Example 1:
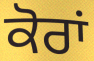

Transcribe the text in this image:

ਕੋਰਾਂ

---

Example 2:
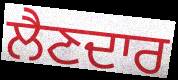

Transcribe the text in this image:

ਲੈਣਦਾਰ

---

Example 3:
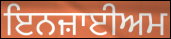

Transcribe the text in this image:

ਇਨਜ਼ਾਈਅਮ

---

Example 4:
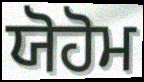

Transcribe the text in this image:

ਯੋਹੋਮ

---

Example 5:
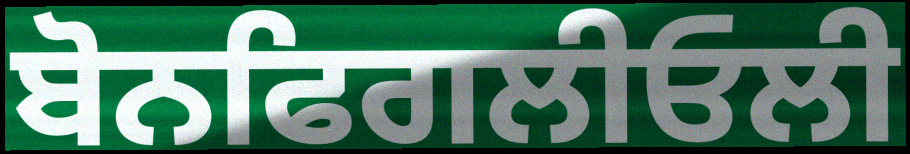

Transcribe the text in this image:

ਬੋਨਫਿਗਲੀਓਲੀ